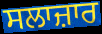
ਸਲਾਜ਼ਾਰ